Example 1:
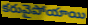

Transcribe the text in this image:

కరువైపోయాయి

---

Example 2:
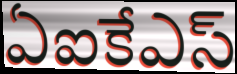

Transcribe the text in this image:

ఏఐకేఎస్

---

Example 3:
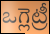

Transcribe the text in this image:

ఒగ్లెట్రీ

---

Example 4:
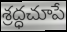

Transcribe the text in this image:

శ్రద్ధచూపే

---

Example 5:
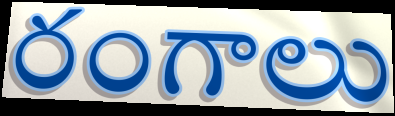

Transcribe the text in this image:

రంగాలు